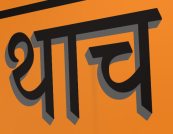
थाच